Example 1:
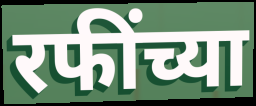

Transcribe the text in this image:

रफींच्या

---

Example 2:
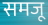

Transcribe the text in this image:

समजू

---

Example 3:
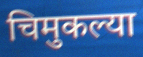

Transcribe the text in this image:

चिमुकल्या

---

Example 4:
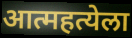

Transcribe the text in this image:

आत्महत्येला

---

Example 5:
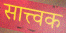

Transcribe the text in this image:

सात्त्वक